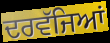
ਦਰਵੱਜਿਆਂ